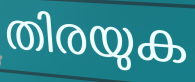
തിരയുക